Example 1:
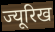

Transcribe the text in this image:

ज्यूरिख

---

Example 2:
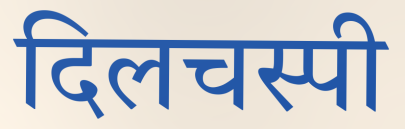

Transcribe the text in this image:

दिलचस्पी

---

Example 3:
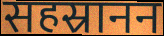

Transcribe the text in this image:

सहस्रानन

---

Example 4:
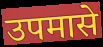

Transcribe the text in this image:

उपमासे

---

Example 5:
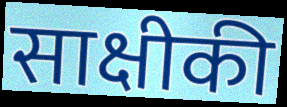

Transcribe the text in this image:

साक्षीकी